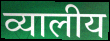
व्यालीय